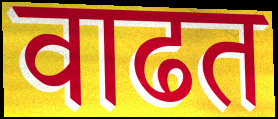
वाढत